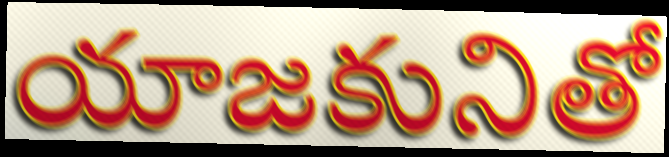
యాజకునితో